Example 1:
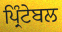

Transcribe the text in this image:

ਪ੍ਰਿੰਟੇਬਲ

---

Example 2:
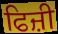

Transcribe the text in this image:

ਫਿਜ਼ੀ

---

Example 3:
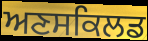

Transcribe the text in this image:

ਅਣਸਕਿਲਡ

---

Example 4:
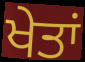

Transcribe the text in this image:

ਖੇਤਾਂ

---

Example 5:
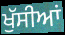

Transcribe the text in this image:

ਖੁੱਸੀਆਂ